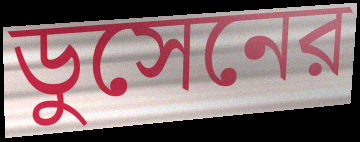
ডুসেনের